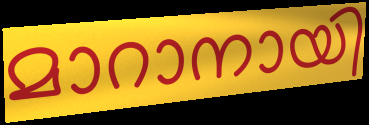
മാറാനായി